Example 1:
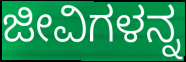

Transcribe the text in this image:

ಜೀವಿಗಳನ್ನ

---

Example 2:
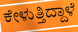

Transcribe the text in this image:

ಕೇಳುತ್ತಿದ್ದಾಳೆ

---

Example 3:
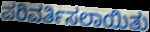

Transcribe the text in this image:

ಪರಿವರ್ತಿಸಲಾಯಿತು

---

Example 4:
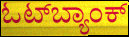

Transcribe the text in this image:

ಓಟ್‌ಬ್ಯಾಂಕ್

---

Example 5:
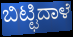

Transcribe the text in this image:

ಬಿಟ್ಟಿದಾಳೆ